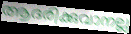
ആദരിക്കുവാനല്ല